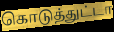
கொடுத்துட்டா